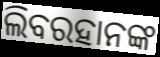
ଲିବରହାନଙ୍କ